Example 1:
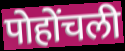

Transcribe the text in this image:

पोहोंचली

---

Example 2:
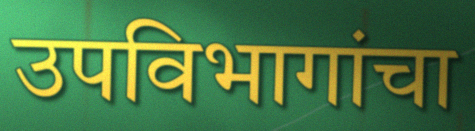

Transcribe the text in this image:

उपविभागांचा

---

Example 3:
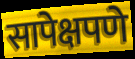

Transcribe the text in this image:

सापेक्षपणे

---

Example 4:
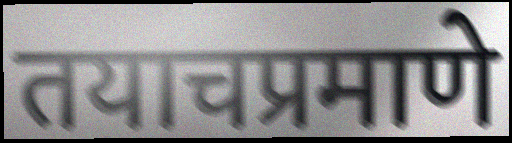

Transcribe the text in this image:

तयाचप्रमाणे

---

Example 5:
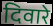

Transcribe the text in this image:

दिवारे